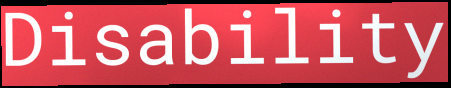
Disability